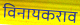
विनायकराव